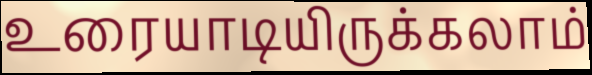
உரையாடியிருக்கலாம்